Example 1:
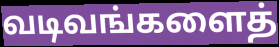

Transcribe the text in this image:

வடிவங்களைத்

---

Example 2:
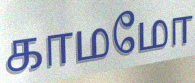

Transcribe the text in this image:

காமமோ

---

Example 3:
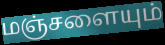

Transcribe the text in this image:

மஞ்சளையும்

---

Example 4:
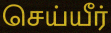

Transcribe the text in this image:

செய்யீர்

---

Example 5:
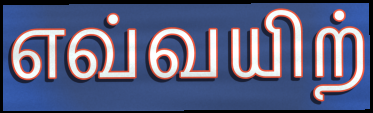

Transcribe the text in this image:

எவ்வயிற்